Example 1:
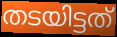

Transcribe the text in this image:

തടയിട്ടത്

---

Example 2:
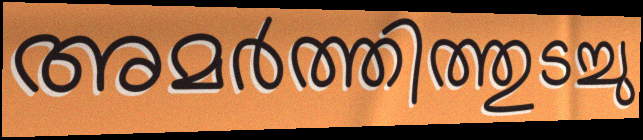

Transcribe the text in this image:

അമർത്തിത്തുടച്ചു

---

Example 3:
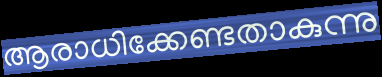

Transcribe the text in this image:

ആരാധിക്കേണ്ടതാകുന്നു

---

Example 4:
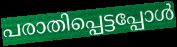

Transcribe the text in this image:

പരാതിപ്പെട്ടപ്പോൾ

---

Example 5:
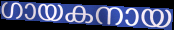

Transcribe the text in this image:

ഗായകനായ